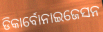
ଡିକାର୍ବୋନାଇଜେସନ